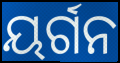
ୟର୍ଗନ